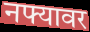
नफ्यावर